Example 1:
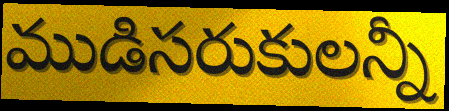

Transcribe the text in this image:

ముడిసరుకులన్నీ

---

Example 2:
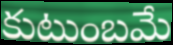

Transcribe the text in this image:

కుటుంబమే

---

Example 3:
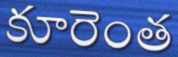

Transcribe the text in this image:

కూరెంత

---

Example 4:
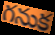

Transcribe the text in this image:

గనుక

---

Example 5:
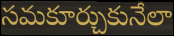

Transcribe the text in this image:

సమకూర్చుకునేలా